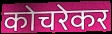
कोचरेकर